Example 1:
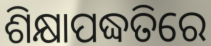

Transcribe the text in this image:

ଶିକ୍ଷାପଦ୍ଧତିରେ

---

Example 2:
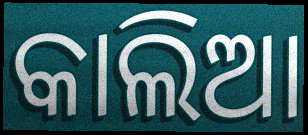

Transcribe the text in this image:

କାଲିଆ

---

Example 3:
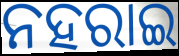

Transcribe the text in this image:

ନହରାଇ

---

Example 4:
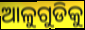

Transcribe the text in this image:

ଆଳୁଗୁଡିକୁ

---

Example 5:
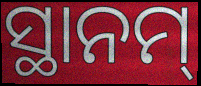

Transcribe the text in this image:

ସ୍ଥାନମ୍